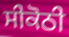
ਸੀਕੋਠੀ